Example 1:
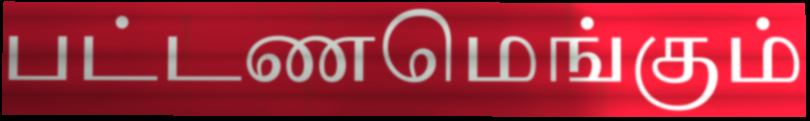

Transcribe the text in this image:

பட்டணமெங்கும்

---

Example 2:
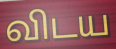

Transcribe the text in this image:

விடய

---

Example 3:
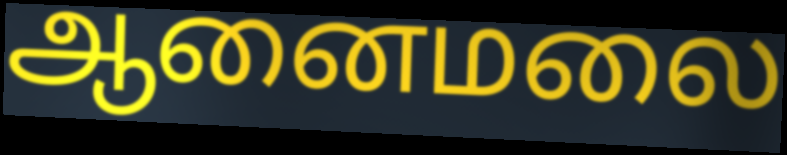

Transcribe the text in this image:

ஆனைமலை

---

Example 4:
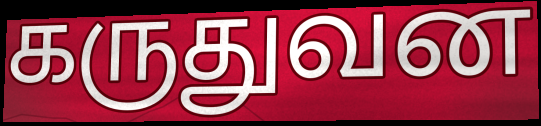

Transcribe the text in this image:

கருதுவன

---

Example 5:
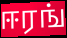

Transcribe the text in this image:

ஈரங்